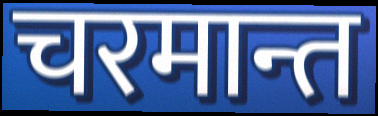
चरमान्त